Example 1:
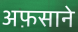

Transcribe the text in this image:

अफ़साने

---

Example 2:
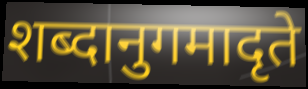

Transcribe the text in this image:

शब्दानुगमादृते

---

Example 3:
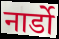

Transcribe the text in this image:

नार्डो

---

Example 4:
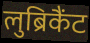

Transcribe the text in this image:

लुब्रिकैंट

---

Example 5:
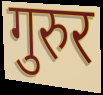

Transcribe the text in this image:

गुरुर